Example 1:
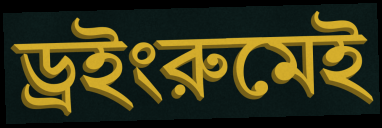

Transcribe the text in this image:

ড্রইংরুমেই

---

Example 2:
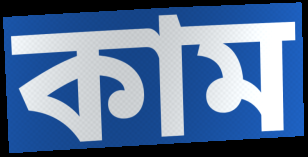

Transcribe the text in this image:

কাম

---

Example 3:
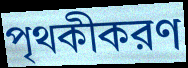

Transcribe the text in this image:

পৃথকীকরণ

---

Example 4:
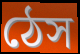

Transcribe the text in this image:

ঠেস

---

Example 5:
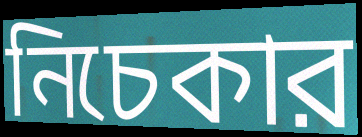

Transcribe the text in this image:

নিচেকার